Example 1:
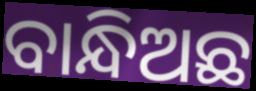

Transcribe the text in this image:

ବାନ୍ଧିଅଛ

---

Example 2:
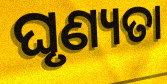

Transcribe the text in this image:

ଘୃଣ୍ୟତା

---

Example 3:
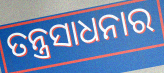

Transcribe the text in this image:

ତନ୍ତ୍ରସାଧନାର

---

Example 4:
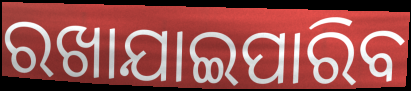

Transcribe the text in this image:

ରଖାଯାଇପାରିବ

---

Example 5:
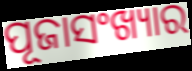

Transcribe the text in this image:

ପୂଜାସଂଖ୍ୟାର